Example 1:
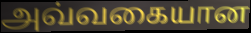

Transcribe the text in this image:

அவ்வகையான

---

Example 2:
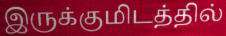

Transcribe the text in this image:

இருக்குமிடத்தில்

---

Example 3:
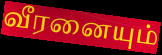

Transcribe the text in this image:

வீரனையும்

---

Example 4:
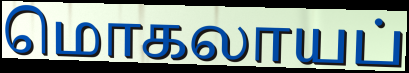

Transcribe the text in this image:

மொகலாயப்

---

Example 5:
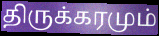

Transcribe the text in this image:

திருக்கரமும்